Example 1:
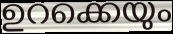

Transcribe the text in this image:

ഉറക്കെയും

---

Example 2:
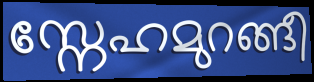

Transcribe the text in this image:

സ്നേഹമുറങ്ങീ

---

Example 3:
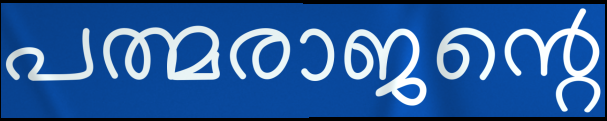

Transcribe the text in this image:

പത്മരാജന്റെ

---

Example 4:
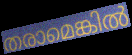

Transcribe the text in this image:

തരാമെങ്കിൽ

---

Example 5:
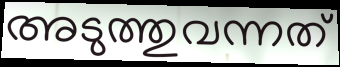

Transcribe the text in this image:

അടുത്തുവന്നത്